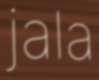
jala